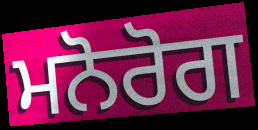
ਮਨੋਰੋਗ